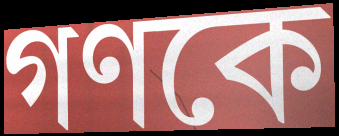
গণকে